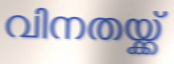
വിനതയ്ക്ക്